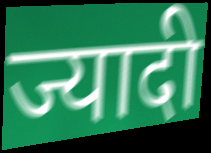
ज्यादी